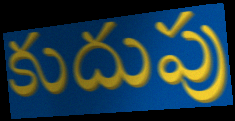
కుదుపు